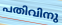
പതിവിനു